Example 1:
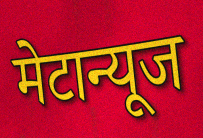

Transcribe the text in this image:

मेटान्यूज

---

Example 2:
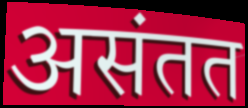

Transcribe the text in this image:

असंतत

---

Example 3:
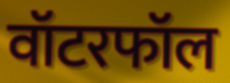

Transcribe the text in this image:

वॉटरफॉल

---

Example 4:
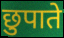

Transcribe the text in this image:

छुपाते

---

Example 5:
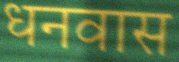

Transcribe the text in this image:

धनवास